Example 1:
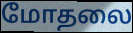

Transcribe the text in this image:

மோதலை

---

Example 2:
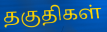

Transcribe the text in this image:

தகுதிகள்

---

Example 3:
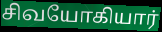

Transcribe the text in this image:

சிவயோகியார்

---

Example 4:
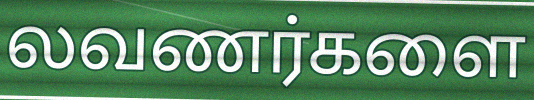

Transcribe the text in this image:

லவணர்களை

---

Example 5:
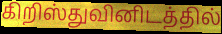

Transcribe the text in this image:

கிறிஸ்துவினிடத்தில்